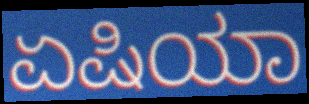
ಏಷಿಯಾ